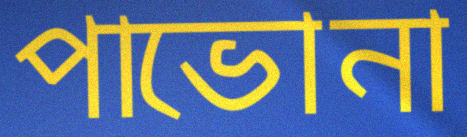
পাভোনা